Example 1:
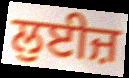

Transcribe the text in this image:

ਲੁਈਜ਼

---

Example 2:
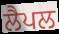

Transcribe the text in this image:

ਲੈਪਲ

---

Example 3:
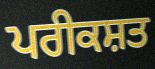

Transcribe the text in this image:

ਪਰੀਕਸ਼ਤ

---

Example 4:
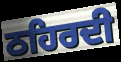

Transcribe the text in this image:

ਠਹਿਰਦੀ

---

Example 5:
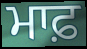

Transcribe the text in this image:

ਮਾਫ਼